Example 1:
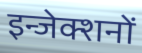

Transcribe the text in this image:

इन्जेक्शनों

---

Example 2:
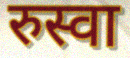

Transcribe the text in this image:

रुस्वा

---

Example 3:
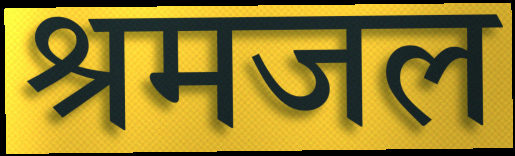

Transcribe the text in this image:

श्रमजल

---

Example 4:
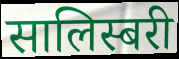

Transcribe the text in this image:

सालिस्बरी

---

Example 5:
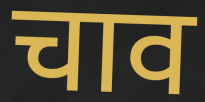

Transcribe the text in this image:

चाव